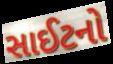
સાઈટનો